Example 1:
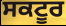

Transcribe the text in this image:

ਸਕਟੂਰ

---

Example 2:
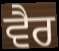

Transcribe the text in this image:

ਵੈਰ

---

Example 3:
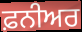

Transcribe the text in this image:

ਫ਼ਨੀਅਰ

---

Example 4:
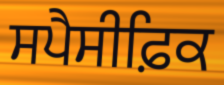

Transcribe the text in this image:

ਸਪੈਸੀਫ਼ਿਕ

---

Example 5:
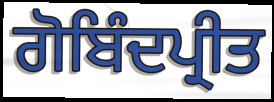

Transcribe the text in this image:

ਗੋਬਿੰਦਪ੍ਰੀਤ